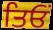
ਤਿਓਂ